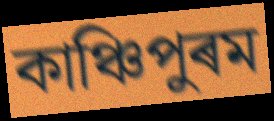
কাঞ্চিপুৰম